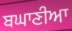
ਬਘਾਣੀਆ